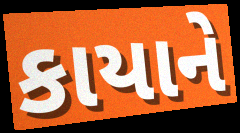
કાયાને